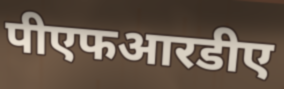
पीएफआरडीए